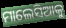
ମାଲେସିଆକୁ